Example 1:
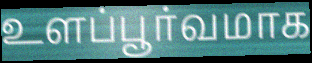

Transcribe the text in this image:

உளப்பூர்வமாக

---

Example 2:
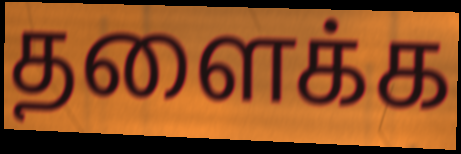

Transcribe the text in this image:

தளைக்க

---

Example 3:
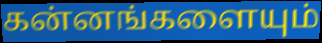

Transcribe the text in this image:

கன்னங்களையும்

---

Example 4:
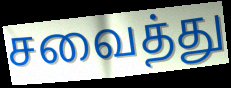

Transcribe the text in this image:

சவைத்து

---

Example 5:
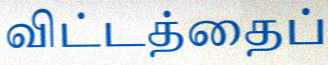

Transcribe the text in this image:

விட்டத்தைப்